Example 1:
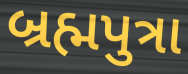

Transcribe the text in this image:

બ્રહ્મપુત્રા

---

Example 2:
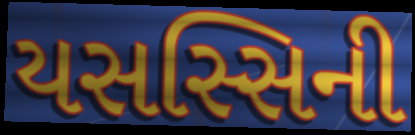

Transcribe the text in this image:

યસસ્સિની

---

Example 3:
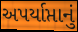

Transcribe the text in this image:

અપર્યાપ્તાનું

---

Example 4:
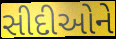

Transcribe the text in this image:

સીદીઓને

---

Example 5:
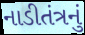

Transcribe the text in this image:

નાડીતંત્રનું